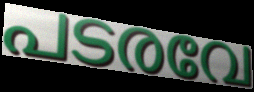
പടരവേ